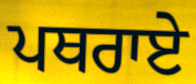
ਪਥਰਾਏ